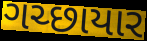
ગચ્છાયાર